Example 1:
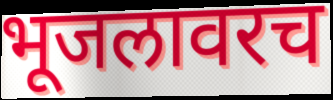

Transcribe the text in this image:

भूजलावरच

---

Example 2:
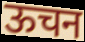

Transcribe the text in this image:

ऊचन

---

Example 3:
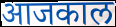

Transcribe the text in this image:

आजकाल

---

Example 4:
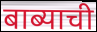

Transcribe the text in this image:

बाब्याची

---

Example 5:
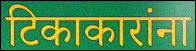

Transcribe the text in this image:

टिकाकारांना